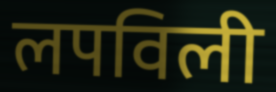
लपविली